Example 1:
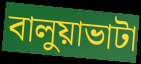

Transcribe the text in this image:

বালুয়াভাটা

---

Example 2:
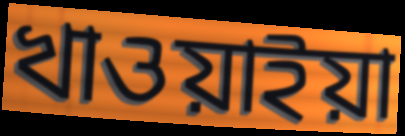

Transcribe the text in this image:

খাওয়াইয়া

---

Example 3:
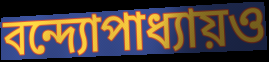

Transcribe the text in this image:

বন্দ্যোপাধ্যায়ও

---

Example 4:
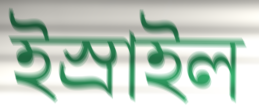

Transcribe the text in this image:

ইস্রাইল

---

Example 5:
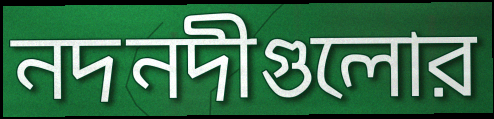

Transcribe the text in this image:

নদনদীগুলোর